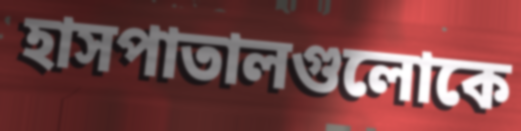
হাসপাতালগুলোকে